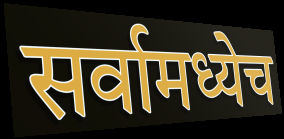
सर्वामध्येच